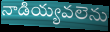
నాడియ్యవలెను